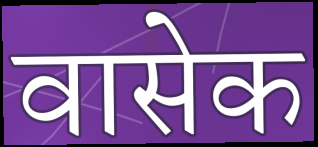
वासेक